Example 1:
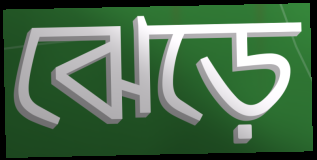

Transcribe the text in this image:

ঝেড়ে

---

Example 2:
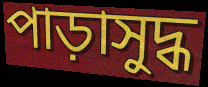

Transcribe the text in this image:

পাড়াসুদ্ধ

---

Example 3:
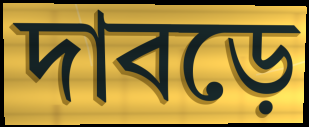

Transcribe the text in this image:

দাবড়ে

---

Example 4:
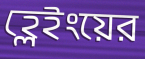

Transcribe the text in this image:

হ্লেইংয়ের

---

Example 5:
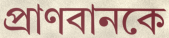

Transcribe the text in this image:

প্রাণবানকে